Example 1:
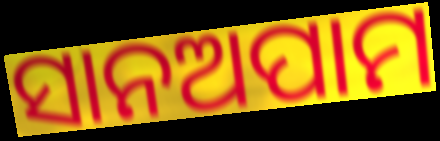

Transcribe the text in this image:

ସାନଅପାମ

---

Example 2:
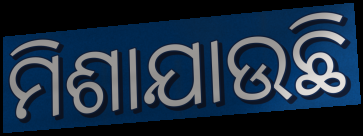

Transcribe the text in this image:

ମିଶାଯାଉଛି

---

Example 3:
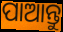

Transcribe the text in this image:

ପାଆନ୍ତୁ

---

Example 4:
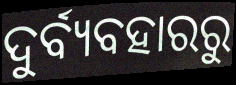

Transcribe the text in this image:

ଦୁର୍ବ୍ୟବହାରରୁ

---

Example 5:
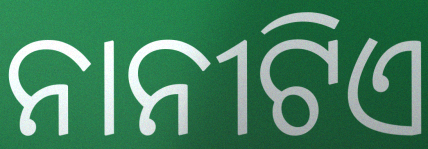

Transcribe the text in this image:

ନାନୀଟିଏ